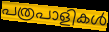
പത്രപാളികൾ